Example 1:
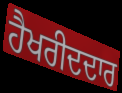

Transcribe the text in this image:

ਹੈਖਰੀਦਦਾਰ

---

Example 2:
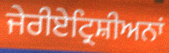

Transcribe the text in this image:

ਜੇਰੀਏਟ੍ਰਿਸ਼ੀਅਨਾਂ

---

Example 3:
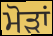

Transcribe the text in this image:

ਮੋੜਾਂ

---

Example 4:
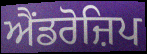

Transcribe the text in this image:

ਐਂਡਰੋਜ਼ਿਪ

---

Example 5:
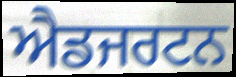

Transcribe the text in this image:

ਐਡਜਰਟਨ